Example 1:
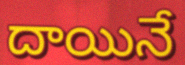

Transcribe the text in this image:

దాయినే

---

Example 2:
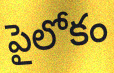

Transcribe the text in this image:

పైలోకం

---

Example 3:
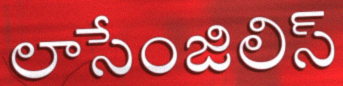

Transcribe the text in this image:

లాసేంజిలిస్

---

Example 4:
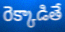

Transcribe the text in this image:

రెక్కాడితే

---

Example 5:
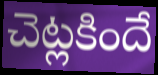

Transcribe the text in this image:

చెట్లకిందే